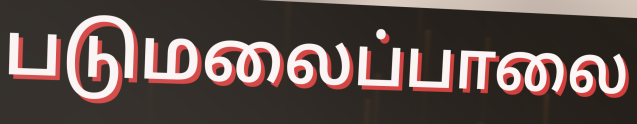
படுமலைப்பாலை